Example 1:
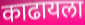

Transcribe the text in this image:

काढायला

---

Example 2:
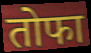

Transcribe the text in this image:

तोफा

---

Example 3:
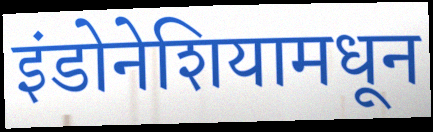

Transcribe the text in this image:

इंडोनेशियामधून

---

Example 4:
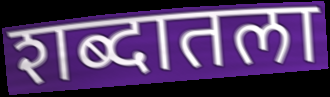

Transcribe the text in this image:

शब्दातला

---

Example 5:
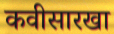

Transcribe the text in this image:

कवीसारखा